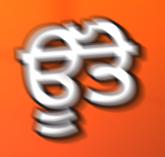
ਊੱਤੇ